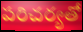
పరిచర్యతో